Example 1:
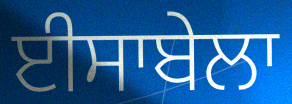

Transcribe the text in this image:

ਈਸਾਬੇਲਾ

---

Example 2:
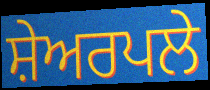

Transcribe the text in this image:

ਸ਼ੇਅਰਪਲੇ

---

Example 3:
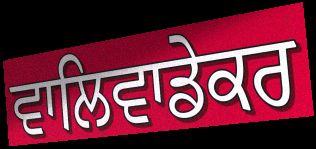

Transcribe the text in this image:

ਵਾਲਿਵਾਡੇਕਰ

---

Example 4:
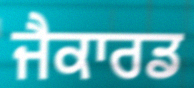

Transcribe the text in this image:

ਜੈਕਾਰਡ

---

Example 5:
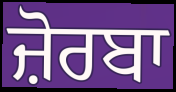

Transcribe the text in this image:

ਜ਼ੋਰਬਾ